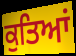
ਕੁਤਿਆਂ